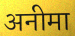
अनीमा